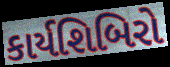
કાર્યશિબિરો